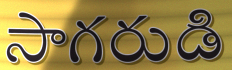
సాగరుడి